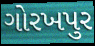
ગોરખપુર